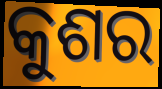
କୁଶର